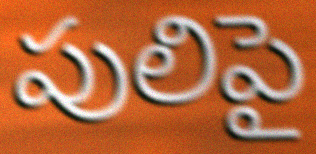
పులిపై